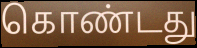
கொண்டது